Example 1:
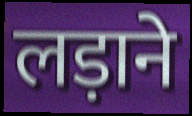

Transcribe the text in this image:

लड़ाने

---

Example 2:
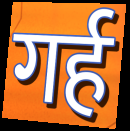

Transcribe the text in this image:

गर्ह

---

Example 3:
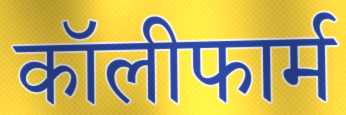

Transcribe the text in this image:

कॉलीफार्म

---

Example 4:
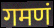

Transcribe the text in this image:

गमणं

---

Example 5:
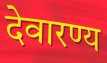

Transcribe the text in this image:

देवारण्य